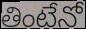
తింటేనో